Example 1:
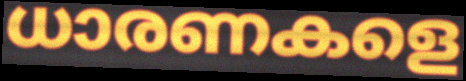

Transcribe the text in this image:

ധാരണകളെ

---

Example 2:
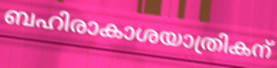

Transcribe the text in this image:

ബഹിരാകാശയാത്രികന്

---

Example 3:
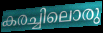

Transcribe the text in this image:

കരച്ചിലൊരു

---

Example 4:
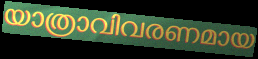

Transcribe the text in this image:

യാത്രാവിവരണമായ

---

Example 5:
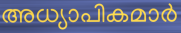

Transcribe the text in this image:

അധ്യാപികമാർ